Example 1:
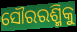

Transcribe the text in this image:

ସୌରରଶ୍ମିକୁ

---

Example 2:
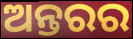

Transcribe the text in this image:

ଅନ୍ତରର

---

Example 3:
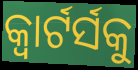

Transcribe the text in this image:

କ୍ୱାର୍ଟର୍ସକୁ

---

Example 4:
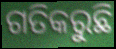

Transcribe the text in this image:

ଗତିକରୁଛି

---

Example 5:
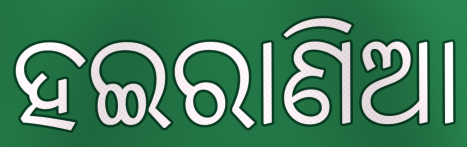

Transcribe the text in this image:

ହଇରାଣିଆ